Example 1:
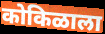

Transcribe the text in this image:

कोकिळाला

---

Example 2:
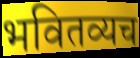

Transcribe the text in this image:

भवितव्यच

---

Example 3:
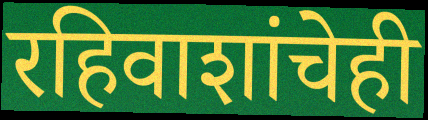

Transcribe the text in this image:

रहिवाशांचेही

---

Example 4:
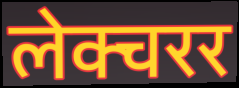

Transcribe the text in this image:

लेक्चरर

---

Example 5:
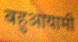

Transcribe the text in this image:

बहुआयामी